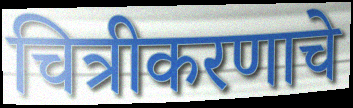
चित्रीकरणाचे